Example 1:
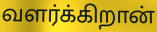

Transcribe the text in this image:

வளர்க்கிறான்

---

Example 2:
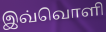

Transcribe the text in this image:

இவ்வொளி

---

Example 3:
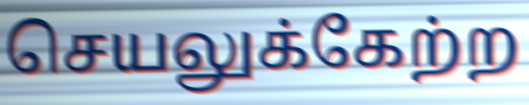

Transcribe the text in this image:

செயலுக்கேற்ற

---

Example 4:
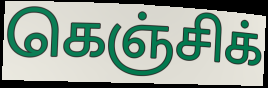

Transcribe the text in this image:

கெஞ்சிக்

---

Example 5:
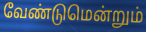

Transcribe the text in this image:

வேண்டுமென்றும்